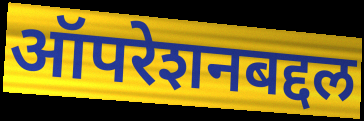
ऑपरेशनबद्दल